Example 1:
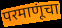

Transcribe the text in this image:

परमाणूंचा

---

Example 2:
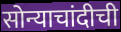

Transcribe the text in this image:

सोन्याचांदीची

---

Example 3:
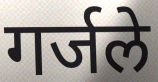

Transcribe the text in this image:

गर्जले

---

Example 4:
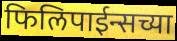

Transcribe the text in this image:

फिलिपाईन्सच्या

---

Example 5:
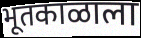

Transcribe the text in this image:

भूतकाळाला